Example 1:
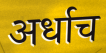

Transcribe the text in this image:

अर्धाच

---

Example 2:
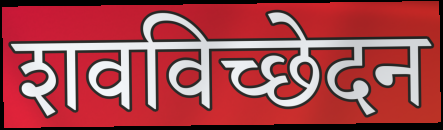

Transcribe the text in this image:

शवविच्छेदन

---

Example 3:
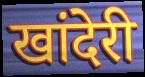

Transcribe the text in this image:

खांदेरी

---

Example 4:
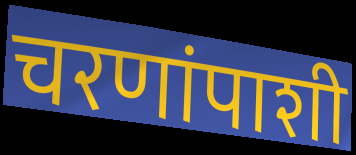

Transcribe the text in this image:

चरणांपाशी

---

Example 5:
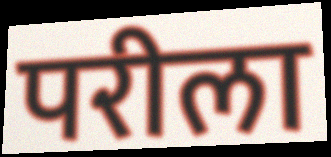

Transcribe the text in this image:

परीला